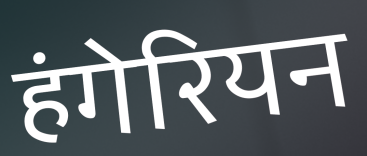
हंगेरियन